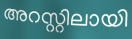
അറസ്റ്റിലായി